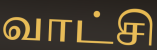
வாட்சி